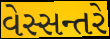
વેસ્સન્તરે